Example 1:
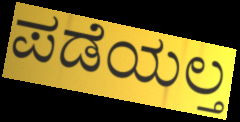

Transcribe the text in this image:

ಪಡೆಯಲ್ತ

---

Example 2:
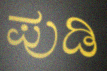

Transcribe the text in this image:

ಪುಡಿ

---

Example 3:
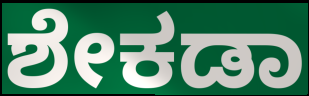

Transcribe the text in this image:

ಶೇಕಡಾ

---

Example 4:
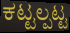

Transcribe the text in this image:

ಕಟ್ಟಲ್ಪಟ್ಟ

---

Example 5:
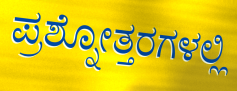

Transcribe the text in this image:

ಪ್ರಶ್ನೋತ್ತರಗಳಲ್ಲಿ